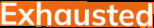
Exhausted